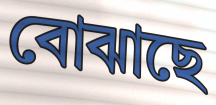
বোঝাছে